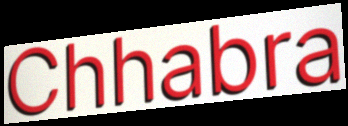
Chhabra